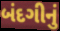
બંદગીનું